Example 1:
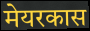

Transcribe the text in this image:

मेयरकास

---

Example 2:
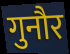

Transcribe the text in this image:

गुनौर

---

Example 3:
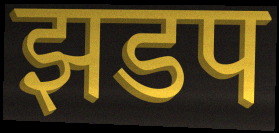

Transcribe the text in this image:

झडप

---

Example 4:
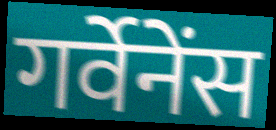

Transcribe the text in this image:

गर्वेनेंस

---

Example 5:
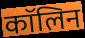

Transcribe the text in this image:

कॉलिन